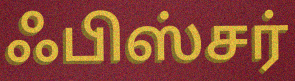
ஃபிஸ்சர்